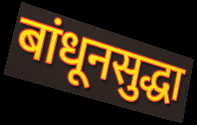
बांधूनसुद्धा